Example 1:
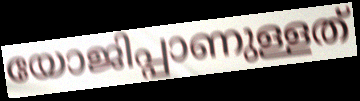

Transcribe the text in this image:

യോജിപ്പാണുള്ളത്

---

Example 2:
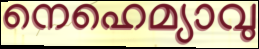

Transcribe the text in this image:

നെഹെമ്യാവു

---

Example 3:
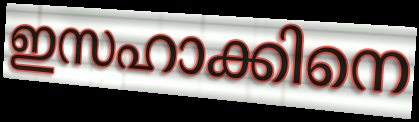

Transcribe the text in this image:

ഇസഹാക്കിനെ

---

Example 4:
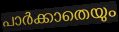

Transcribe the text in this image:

പാർക്കാതെയും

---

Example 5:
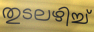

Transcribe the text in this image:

തുടലഴിച്ച്